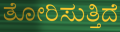
ತೋರಿಸುತ್ತಿದೆ